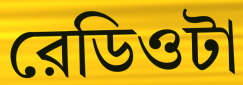
রেডিওটা